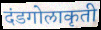
दंडगोलाकृती